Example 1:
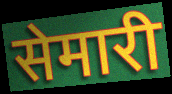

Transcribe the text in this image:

सेमारी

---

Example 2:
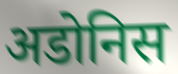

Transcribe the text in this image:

अडोनिस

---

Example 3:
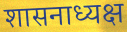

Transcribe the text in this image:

शासनाध्यक्ष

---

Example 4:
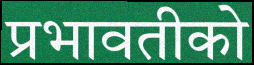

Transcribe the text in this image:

प्रभावतीको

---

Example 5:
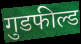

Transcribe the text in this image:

गुडफील्ड